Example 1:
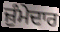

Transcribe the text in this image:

ਜ਼ੁੰਮੇਦਾਰ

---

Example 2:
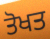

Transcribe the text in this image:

ਤੋਖਤ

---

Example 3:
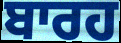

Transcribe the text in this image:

ਬਾਰਹ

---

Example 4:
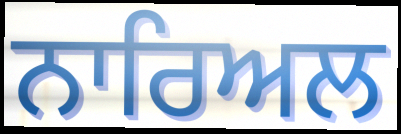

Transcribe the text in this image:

ਨਾਰਿਅਲ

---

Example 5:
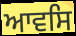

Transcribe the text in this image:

ਆਵਸਿ